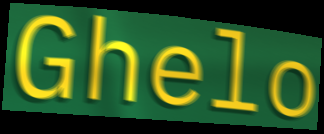
Ghelo